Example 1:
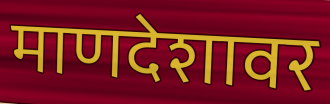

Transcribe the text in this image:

माणदेशावर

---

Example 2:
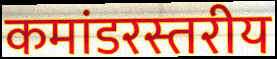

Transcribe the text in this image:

कमांडरस्तरीय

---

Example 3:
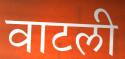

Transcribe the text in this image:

वाटली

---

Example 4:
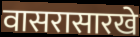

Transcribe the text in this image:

वासरासारखे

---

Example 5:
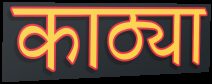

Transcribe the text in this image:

काठ्या